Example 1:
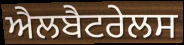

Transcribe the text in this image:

ਐਲਬੈਟਰੇਲਸ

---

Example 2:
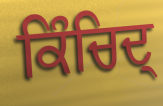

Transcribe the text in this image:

ਕਿੰਚਿਦ੍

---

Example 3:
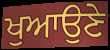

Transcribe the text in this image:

ਖੁਆਉਣੇ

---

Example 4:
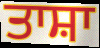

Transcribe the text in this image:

ਤਾਸ਼ਾ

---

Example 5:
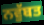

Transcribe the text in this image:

ਨਵੁੱਬਤ